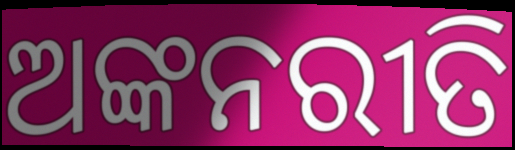
ଅଙ୍କନରୀତି